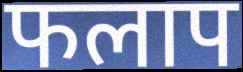
फलाप